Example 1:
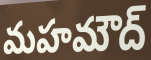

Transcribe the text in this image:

మహమౌద్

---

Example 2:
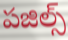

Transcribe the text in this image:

పజిల్స్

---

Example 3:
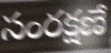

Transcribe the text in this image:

సంరక్షణే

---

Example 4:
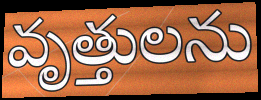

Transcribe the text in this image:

వృత్తులను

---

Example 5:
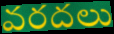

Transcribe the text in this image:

వరదలు